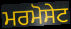
ਮਰਮੋਸੇਟ